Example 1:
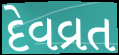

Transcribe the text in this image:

દેવવ્રત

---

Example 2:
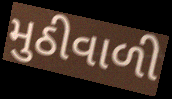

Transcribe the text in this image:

મુઠીવાળી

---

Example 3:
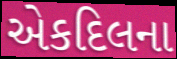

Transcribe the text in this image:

એકદિલના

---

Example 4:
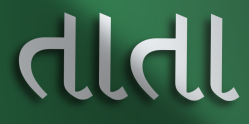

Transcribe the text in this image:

તાતા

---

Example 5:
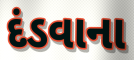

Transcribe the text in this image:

દંડવાના